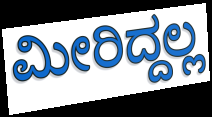
ಮೀರಿದ್ದಲ್ಲ